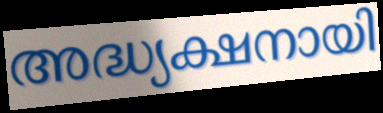
അദ്ധ്യക്ഷനായി